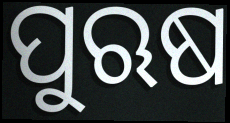
ପୁଋଷ